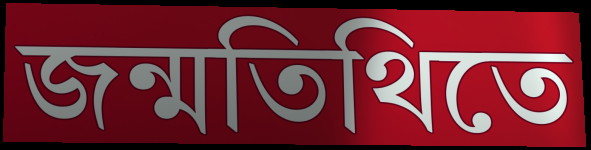
জন্মতিথিতে